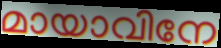
മായാവിനേ